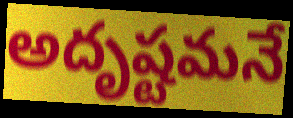
అదృష్టమనే